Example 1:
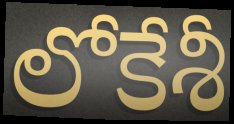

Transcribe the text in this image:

లోకేశీ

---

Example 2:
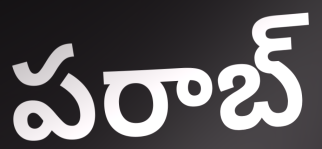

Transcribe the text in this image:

పరాబ్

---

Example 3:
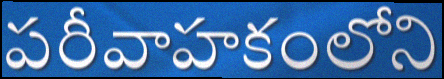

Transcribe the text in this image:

పరీవాహకంలోని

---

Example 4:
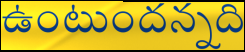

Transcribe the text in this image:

ఉంటుందన్నది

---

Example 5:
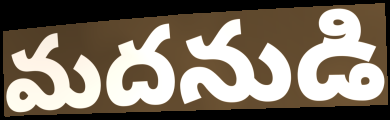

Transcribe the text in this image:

మదనుడి